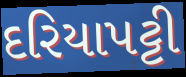
દરિયાપટ્ટી